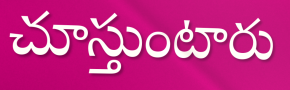
చూస్తుంటారు